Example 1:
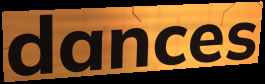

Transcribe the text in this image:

dances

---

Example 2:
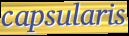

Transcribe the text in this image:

capsularis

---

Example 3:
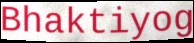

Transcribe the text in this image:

Bhaktiyog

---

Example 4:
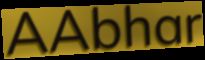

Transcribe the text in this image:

AAbhar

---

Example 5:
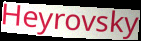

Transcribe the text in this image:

Heyrovsky